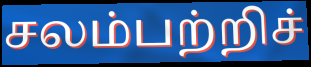
சலம்பற்றிச்